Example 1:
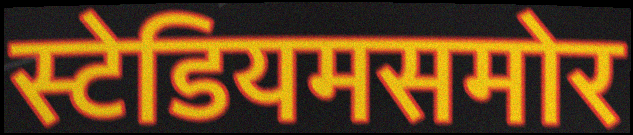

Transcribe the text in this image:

स्टेडियमसमोर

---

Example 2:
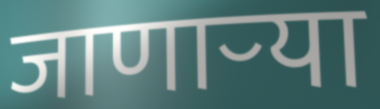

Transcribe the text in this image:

जाणाऱ्या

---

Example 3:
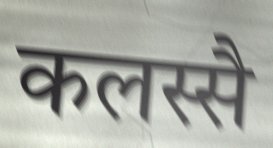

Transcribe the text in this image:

कलस्सै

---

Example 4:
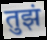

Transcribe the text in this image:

तुझं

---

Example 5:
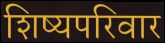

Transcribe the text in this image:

शिष्यपरिवार